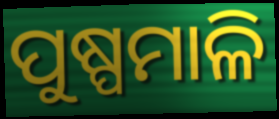
ପୁଷ୍ପମାଳି